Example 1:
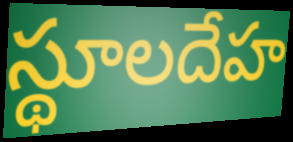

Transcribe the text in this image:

స్థూలదేహ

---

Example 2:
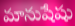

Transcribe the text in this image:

మానుషేషు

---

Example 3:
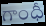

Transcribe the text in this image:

గాంధీ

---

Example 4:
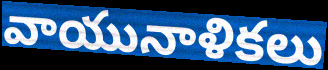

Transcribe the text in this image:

వాయునాళికలు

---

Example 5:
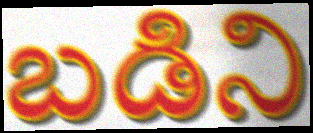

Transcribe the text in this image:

బడిని